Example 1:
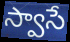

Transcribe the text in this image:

స్వాసే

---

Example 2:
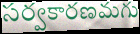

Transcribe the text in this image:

సర్వకారణమగు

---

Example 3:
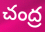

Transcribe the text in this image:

చంద్ర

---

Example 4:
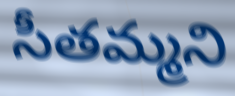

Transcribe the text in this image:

సీతమ్మని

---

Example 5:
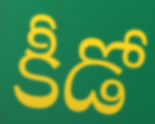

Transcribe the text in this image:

కీడో